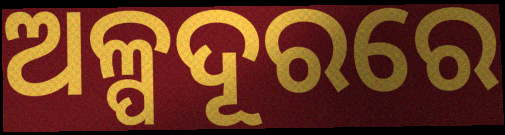
ଅଳ୍ପଦୂରରେ